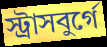
স্ট্রাসবুর্গে